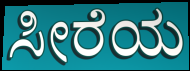
ಸೀರೆಯ